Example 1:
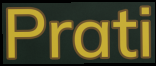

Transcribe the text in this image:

Prati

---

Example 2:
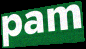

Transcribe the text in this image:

pam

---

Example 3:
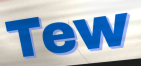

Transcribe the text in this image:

Tew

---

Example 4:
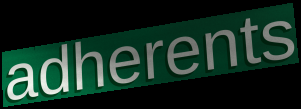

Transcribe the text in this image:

adherents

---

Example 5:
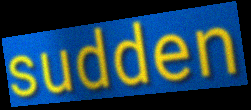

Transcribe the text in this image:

sudden